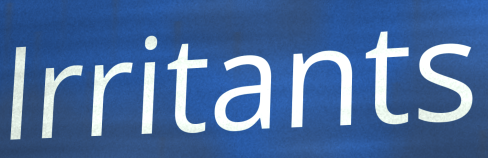
Irritants